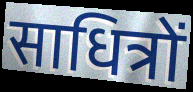
साधित्रों